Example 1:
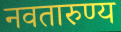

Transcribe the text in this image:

नवतारुण्य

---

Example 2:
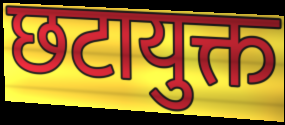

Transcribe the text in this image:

छटायुक्त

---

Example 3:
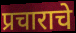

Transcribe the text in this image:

प्रचाराचे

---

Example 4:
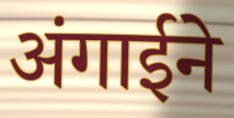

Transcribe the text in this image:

अंगाईने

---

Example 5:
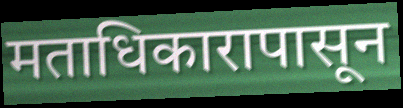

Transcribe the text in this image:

मताधिकारापासून